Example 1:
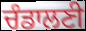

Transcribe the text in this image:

ਚੰਡਾਲਣੀ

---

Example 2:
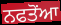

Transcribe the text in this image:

ਨਫਤੋਂਆ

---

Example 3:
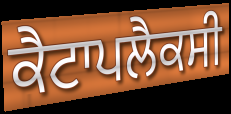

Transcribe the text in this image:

ਕੈਟਾਪਲੈਕਸੀ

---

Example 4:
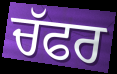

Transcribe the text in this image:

ਚੱਫਰ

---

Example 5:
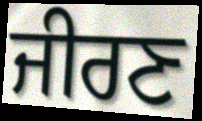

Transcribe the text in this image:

ਜੀਰਣ